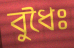
বুধৈঃ